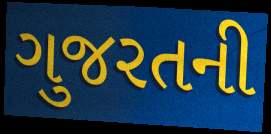
ગુજરતની